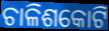
ଚାଳିଶକୋଟି